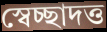
স্বেচ্ছাদত্ত